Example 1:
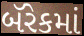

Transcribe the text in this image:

બૅરેકમાં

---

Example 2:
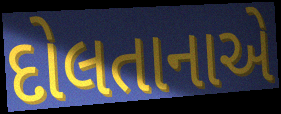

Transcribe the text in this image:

દોલતાનાએ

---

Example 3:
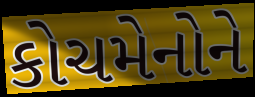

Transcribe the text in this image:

કોચમેનોને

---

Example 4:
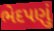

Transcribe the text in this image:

ભેદપણું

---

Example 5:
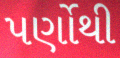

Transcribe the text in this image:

પર્ણોથી